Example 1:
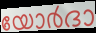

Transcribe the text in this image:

യോർദാ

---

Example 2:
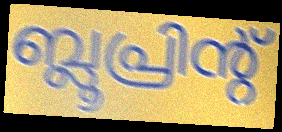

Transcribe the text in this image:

ബ്ലൂപ്രിന്റ്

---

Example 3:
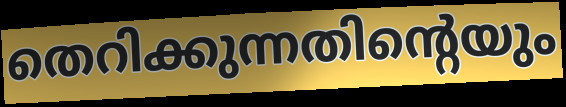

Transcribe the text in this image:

തെറിക്കുന്നതിന്റെയും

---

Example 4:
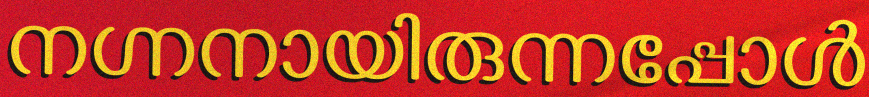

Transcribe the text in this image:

നഗ്നനായിരുന്നപ്പോൾ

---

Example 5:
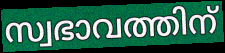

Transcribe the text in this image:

സ്വഭാവത്തിന്